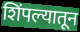
शिंपल्यातून